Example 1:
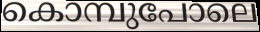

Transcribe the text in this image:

കൊമ്പുപോലെ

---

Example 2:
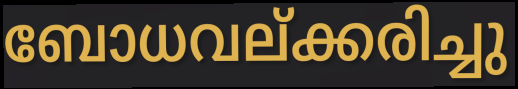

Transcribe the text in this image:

ബോധവല്ക്കരിച്ചു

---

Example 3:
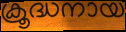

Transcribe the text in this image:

ക്രൂദ്ധനായ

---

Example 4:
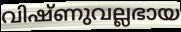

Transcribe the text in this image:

വിഷ്ണുവല്ലഭായ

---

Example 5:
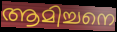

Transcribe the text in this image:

ആമിച്ചനെ